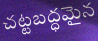
చట్టబద్ధమైన